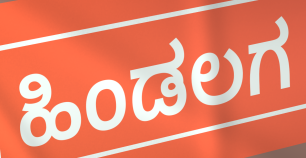
ಹಿಂಡಲಗ